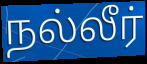
நல்லீர்